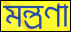
মন্ত্রণা